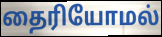
தைரியோமல்